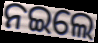
ନଇଲେ